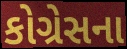
કોગ્રેસના